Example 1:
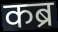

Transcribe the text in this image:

कब्र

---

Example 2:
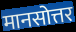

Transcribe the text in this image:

मानसोत्तर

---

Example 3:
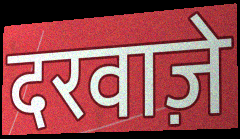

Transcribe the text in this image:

दरवाज़े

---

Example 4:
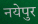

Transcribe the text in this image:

नयेपुर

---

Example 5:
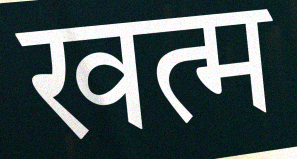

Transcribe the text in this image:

खत्‍म